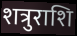
शत्रुराशि